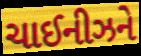
ચાઈનીઝને